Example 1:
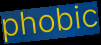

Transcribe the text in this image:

phobic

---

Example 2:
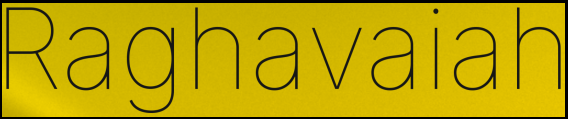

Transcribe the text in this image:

Raghavaiah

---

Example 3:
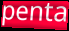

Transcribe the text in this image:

penta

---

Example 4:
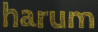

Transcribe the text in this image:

harum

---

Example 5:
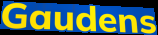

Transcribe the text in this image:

Gaudens